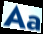
Aa